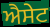
ਐਸੇਟ